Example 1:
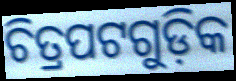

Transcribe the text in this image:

ଚିତ୍ରପଟଗୁଡ଼ିକ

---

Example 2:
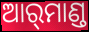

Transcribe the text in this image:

ଆର୍‌ମାଣ୍ଡ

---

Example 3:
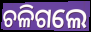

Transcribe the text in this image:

ଚଳିଗଲେ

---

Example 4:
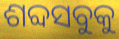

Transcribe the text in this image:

ଶବ୍ଦସବୁକୁ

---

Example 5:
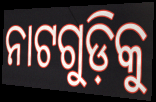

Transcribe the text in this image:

ନାଟଗୁଡ଼ିକୁ